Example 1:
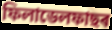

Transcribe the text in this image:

ফিলাডেলফাছৰ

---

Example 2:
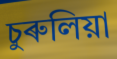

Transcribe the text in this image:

চুৰুলিয়া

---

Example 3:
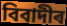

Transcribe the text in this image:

বিবাদীৰ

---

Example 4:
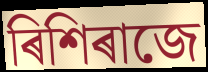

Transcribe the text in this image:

ৰিশিৰাজে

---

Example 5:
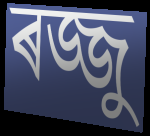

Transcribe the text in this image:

ৰজ্জু